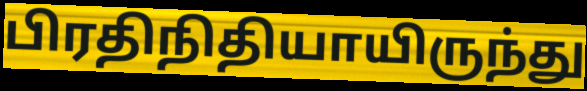
பிரதிநிதியாயிருந்து